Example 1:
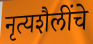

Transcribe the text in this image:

नृत्यशैलींचे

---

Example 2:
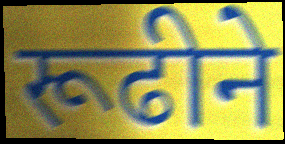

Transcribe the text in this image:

रूढीने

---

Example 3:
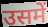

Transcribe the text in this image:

उसमें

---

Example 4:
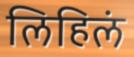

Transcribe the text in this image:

लिहिलं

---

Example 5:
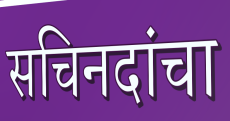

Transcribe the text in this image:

सचिनदांचा